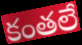
కంతలే